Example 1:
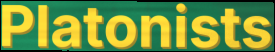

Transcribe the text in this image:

Platonists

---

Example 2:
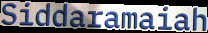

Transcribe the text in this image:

Siddaramaiah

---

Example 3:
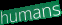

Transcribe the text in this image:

humans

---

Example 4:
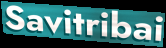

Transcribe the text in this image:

Savitribai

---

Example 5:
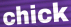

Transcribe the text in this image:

chick